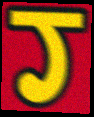
ग्‍